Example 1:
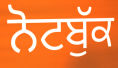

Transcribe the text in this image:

ਨੋਟਬੁੱਕ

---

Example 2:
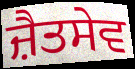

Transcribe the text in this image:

ਜ਼ੈਤਸੇਵ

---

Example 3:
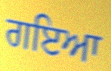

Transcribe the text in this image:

ਗਇਆ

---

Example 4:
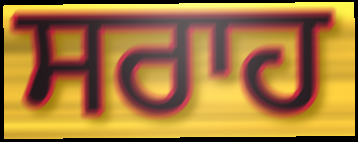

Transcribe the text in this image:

ਸਰਾਹ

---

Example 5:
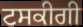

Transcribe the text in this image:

ਟਸਕੀਗੀ